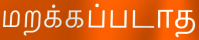
மறக்கப்படாத